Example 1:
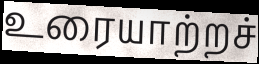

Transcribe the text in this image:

உரையாற்றச்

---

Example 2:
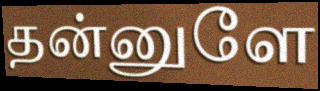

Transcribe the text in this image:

தன்னுளே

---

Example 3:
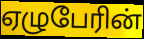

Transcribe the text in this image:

ஏழுபேரின்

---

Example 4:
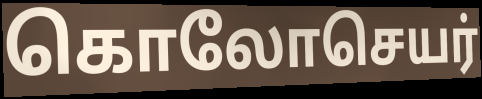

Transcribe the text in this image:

கொலோசெயர்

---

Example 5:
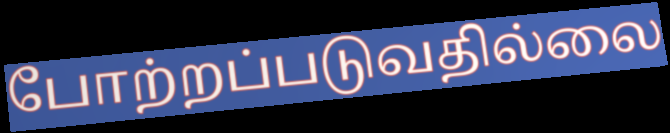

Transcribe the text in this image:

போற்றப்படுவதில்லை